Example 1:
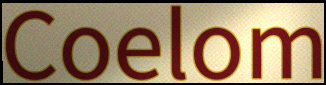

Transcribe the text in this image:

Coelom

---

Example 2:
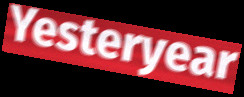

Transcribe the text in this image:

Yesteryear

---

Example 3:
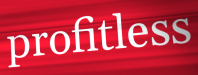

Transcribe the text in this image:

profitless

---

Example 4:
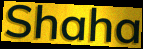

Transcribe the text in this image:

Shaha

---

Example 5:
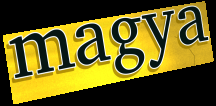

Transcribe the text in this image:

magya